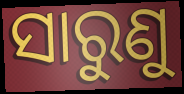
ସାରୁଣୁ